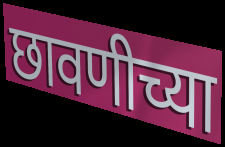
छावणीच्या